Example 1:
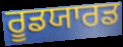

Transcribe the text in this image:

ਰੂਡਯਾਰਡ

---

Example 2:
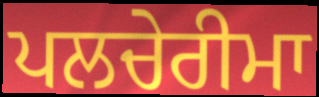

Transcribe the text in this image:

ਪਲਚੇਰੀਮਾ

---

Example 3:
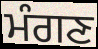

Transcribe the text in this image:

ਮੰਗਣ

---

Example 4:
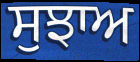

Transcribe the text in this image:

ਸੁਝਾਅ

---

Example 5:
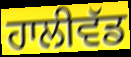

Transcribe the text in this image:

ਹਾਲੀਵੱਡ